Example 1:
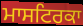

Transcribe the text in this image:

ਮਾਸਟਿਰਕਾ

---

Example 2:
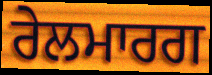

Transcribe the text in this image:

ਰੇਲਮਾਰਗ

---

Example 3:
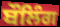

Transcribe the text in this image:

ਬੌਲਿੰਗ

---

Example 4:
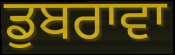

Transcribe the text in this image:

ਡੁਬਰਾਵਾ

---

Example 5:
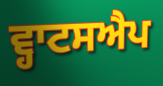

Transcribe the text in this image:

ਵ੍ਹਾਟਸਐਪ